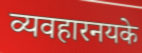
व्यवहारनयके